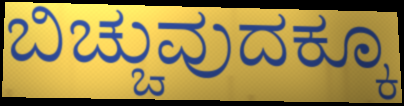
ಬಿಚ್ಚುವುದಕ್ಕೂ